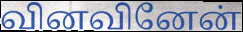
வினவினேன்